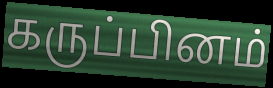
கருப்பினம்